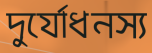
দুর্যোধনস্য